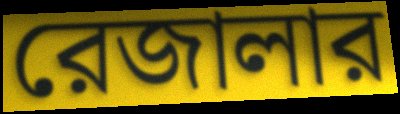
রেজালার